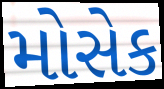
મોસેક